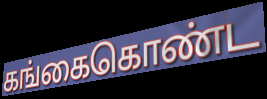
கங்கைகொண்ட